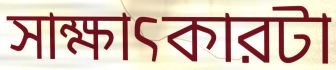
সাক্ষাৎকারটা